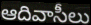
ఆదివాసీలు